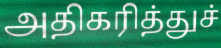
அதிகரித்துச்